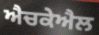
ਐਚਕੇਐਲ